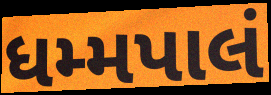
ધમ્મપાલં